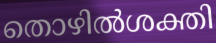
തൊഴിൽശക്തി